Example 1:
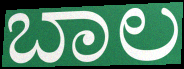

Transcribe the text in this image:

ಬಾಲ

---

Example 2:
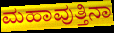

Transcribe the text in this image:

ಮಹಾವುತ್ತಿನಾ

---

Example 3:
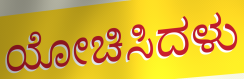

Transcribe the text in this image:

ಯೋಚಿಸಿದಳು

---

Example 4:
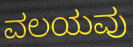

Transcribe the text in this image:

ವಲಯವು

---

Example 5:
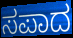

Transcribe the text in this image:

ಸಪಾದ